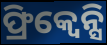
ଫ୍ରିକ୍ୱେନ୍ସି